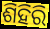
ଶିହିରି